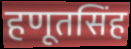
हणूतसिंह